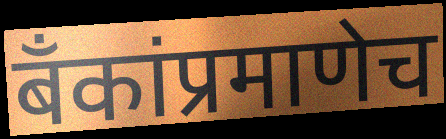
बॅंकांप्रमाणेच